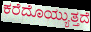
ಕರೆದೊಯ್ಯುತ್ತದೆ